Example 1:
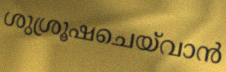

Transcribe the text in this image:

ശുശ്രൂഷചെയ്‌വാൻ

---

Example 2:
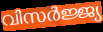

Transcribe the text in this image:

വിസർജ്ജ്യ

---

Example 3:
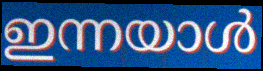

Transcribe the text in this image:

ഇന്നയാൾ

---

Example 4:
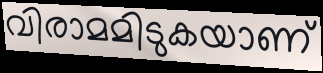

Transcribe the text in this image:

വിരാമമിടുകയാണ്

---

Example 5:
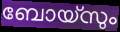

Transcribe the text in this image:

ബോയ്സും